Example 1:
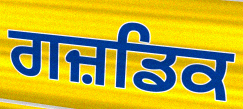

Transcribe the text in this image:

ਗਜ਼ਡਿਕ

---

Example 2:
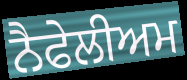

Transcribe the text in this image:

ਨੈਫੇਲੀਅਮ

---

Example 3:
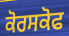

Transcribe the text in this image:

ਕੋਰਸਕੋਫ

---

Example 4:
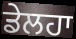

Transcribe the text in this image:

ਡੇਲਹਾ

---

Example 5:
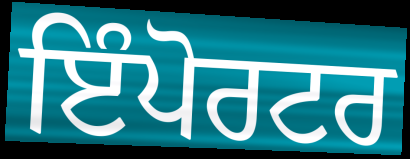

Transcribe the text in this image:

ਇੰਪੋਰਟਰ